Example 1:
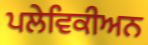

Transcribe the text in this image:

ਪਲੇਵਿਕੀਅਨ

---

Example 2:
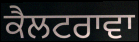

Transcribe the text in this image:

ਕੈਲਟਰਾਵਾ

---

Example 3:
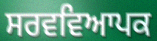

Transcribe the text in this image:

ਸਰਵਵਿਆਪਕ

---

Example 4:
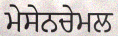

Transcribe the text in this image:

ਮੇਸੇਨਚੇਮਲ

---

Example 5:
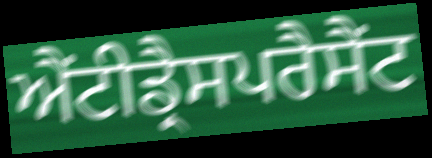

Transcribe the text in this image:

ਐਂਟੀਡ੍ਰੈਸਪਰੈਸੈਂਟ